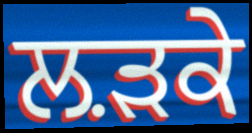
ਲ਼ਡ਼ਕੇ